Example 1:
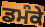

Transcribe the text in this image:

ਡਮੰਕੇ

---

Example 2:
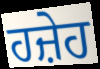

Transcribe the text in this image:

ਹਜ਼ੇਹ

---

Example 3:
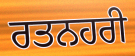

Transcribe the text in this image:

ਰਤਨਹਰੀ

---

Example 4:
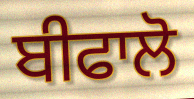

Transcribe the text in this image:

ਬੀਫਾਲੋ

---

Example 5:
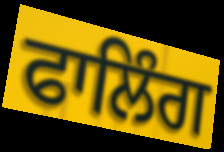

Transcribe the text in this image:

ਫਾਲਿੰਗ